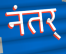
नंतर्